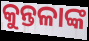
କୁନ୍ତଳାଙ୍କ